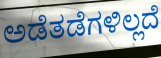
ಅಡೆತಡೆಗಳಿಲ್ಲದೆ